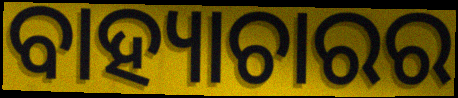
ବାହ୍ୟାଚାରର